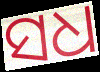
ସଧ